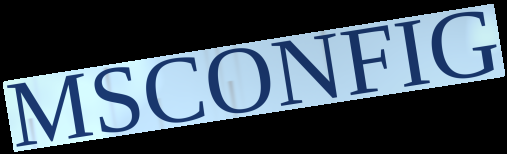
MSCONFIG